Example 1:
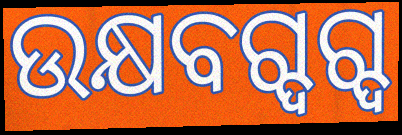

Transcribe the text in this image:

ଉକ୍ଷବଗ୍ଦଗ୍ଦ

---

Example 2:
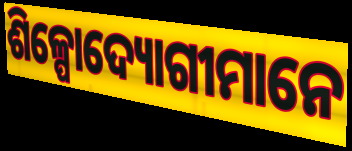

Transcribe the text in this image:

ଶିଳ୍ପୋଦ୍ୟୋଗୀମାନେ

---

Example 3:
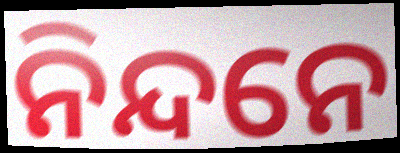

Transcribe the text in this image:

ନିନ୍ଦନେ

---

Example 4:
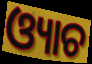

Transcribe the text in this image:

ଓ୍ୟାଚ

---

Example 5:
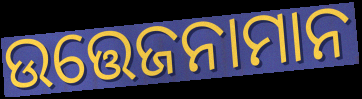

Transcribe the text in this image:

ଉତ୍ତେଜନାମାନ